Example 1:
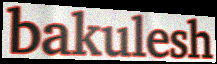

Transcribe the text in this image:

bakulesh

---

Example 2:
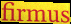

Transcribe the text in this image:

firmus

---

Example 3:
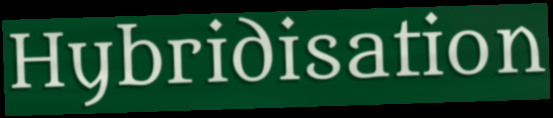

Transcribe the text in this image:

Hybridisation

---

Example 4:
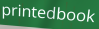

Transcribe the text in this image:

printedbook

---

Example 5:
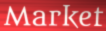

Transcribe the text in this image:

Market